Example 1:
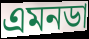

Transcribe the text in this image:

এমনডা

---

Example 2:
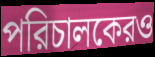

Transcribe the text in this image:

পরিচালকেরও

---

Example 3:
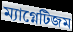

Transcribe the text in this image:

ম্যাগ্নেটিজম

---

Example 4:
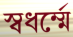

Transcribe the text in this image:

স্বধর্ম্মে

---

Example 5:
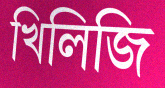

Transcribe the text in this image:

খিলিজি